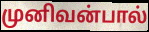
முனிவன்பால்